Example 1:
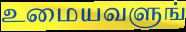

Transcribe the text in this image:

உமையவளுங்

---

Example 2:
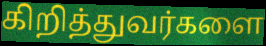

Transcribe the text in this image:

கிறித்துவர்களை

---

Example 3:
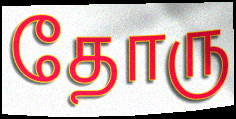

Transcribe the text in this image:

தோரு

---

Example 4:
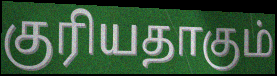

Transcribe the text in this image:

குரியதாகும்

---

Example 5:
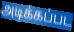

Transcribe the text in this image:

அடிக்கப்பட